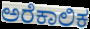
ಅರೆಕಾಲಿಕ